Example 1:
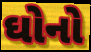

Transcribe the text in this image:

ઘોનો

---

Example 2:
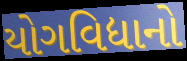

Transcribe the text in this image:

યોગવિદ્યાનો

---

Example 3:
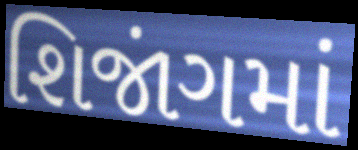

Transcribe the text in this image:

શિજાંગમાં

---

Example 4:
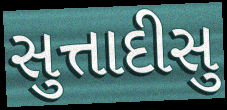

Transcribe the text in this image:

સુત્તાદીસુ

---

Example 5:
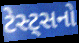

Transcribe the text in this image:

ટેસ્ટ્સનો